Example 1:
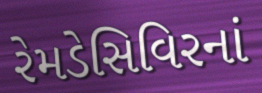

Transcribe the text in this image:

રેમડેસિવિરનાં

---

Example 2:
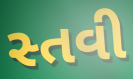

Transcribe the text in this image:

સ્તવી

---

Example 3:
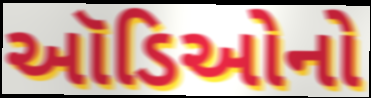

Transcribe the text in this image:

ઑડિઓનો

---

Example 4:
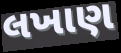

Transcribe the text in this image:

લખાણ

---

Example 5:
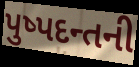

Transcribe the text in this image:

પુષ્પદન્તની